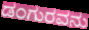
ಡಂಗುರವನು